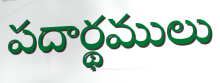
పదార్థములు